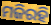
ମଜିରହି